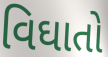
વિઘાતો